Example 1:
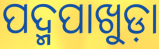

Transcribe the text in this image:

ପଦ୍ମପାଖୁଡ଼ା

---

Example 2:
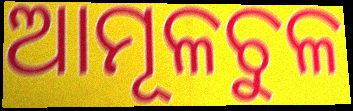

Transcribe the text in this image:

ଆମୂଳଚୁଳ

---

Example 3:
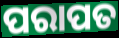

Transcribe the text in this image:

ପରାପତ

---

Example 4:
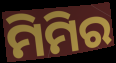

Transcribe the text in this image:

ମିମିର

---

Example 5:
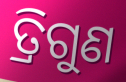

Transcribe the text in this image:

ତ୍ରିଗୁଣ